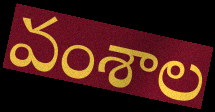
వంశాల